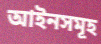
আইনসমূহ